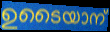
ഉടൈയാന്